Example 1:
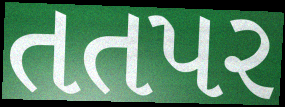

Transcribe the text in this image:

તતપર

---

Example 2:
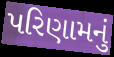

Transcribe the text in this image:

પરિણામનું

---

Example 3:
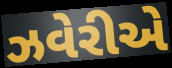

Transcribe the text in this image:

ઝવેરીએ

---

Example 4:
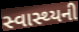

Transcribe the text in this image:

સ્વાસ્થ્યની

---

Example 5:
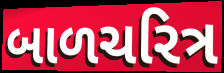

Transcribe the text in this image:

બાળચરિત્ર